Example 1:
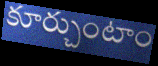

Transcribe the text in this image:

కూర్చుంటాం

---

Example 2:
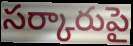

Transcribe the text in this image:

సర్కారుపై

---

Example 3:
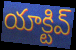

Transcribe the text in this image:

యాక్టివ్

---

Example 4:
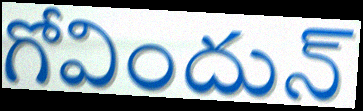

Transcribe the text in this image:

గోవిందున్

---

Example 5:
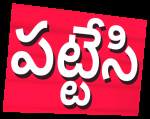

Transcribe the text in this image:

పట్టేసి